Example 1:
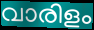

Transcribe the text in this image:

വാരിളം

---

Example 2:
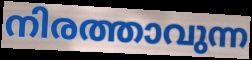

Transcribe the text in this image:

നിരത്താവുന്ന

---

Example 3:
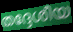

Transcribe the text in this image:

തദ്ദേശീയ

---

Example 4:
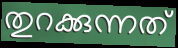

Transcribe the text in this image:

തുറക്കുന്നത്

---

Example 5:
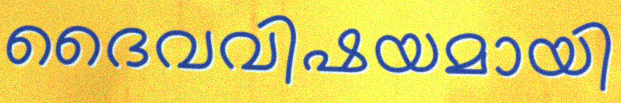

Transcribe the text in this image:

ദൈവവിഷയമായി